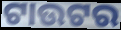
ଟାଉଟର